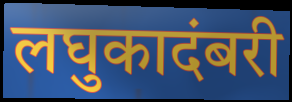
लघुकादंबरी